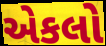
એકલો